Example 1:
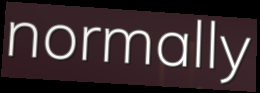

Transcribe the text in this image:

normally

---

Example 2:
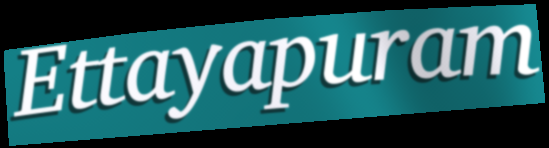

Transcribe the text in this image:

Ettayapuram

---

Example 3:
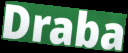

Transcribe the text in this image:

Draba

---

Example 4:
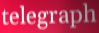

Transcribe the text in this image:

telegraph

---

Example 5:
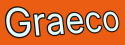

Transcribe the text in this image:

Graeco